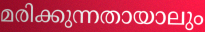
മരിക്കുന്നതായാലും